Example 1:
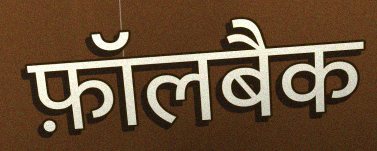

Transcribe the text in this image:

फ़ॉलबैक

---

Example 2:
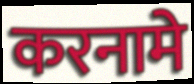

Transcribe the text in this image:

करनामे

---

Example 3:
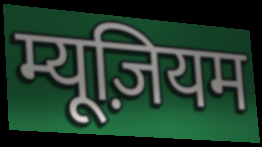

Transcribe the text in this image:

म्यूज़ियम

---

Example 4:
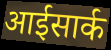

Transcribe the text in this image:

आईसार्क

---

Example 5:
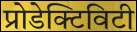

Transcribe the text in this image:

प्रोडेक्टिविटी